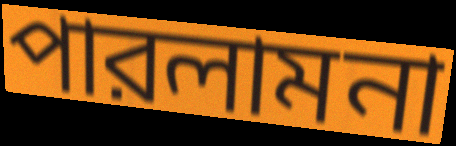
পারলামনা